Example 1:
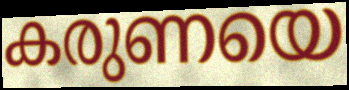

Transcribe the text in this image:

കരുണയെ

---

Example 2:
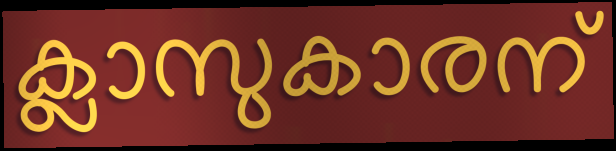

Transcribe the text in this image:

ക്ലാസുകാരന്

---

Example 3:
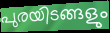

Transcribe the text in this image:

പുരയിടങ്ങളും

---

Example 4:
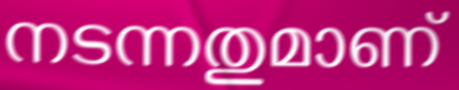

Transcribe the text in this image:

നടന്നതുമാണ്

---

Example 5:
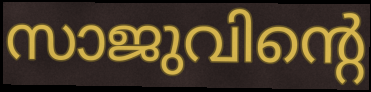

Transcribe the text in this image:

സാജുവിന്റെ